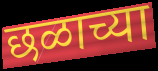
छळाच्या